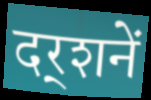
दर्शनें